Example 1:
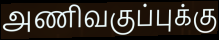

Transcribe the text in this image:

அணிவகுப்புக்கு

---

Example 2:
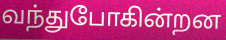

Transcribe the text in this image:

வந்துபோகின்றன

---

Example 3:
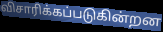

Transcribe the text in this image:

விசாரிக்கப்படுகின்றன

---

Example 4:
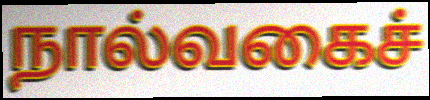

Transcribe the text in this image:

நால்வகைச்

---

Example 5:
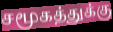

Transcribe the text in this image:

சமூகத்துக்கு